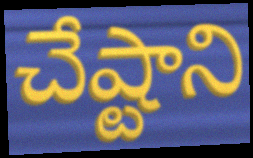
చేష్టాని